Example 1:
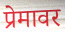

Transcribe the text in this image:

प्रेमावर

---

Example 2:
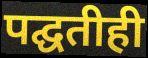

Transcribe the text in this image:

पद्घतीही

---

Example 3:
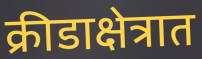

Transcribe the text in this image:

क्रीडाक्षेत्रात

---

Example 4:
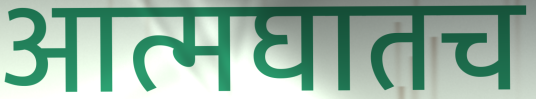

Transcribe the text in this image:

आत्मघातच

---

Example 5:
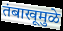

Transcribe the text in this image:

तंबाखूमुळे